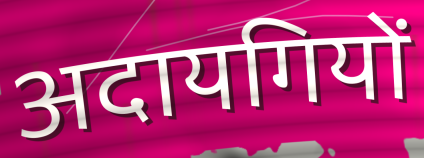
अदायगियों